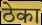
ठेका